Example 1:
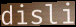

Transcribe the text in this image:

disli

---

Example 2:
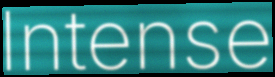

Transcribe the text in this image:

Intense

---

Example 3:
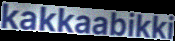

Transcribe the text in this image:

kakkaabikki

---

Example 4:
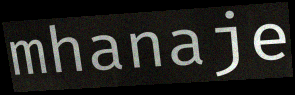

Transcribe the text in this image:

mhanaje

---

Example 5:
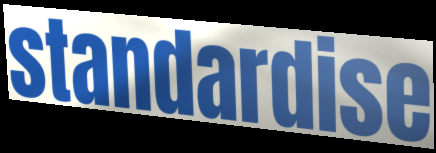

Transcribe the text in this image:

standardise